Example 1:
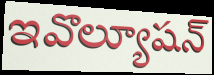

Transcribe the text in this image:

ఇవొల్యూషన్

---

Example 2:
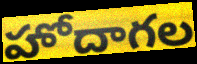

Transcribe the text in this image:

హోదాగల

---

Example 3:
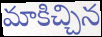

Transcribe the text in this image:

మాకిచ్చిన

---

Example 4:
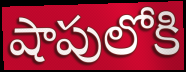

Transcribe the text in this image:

షాపులోకి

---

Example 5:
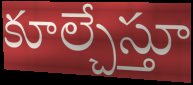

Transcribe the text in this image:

కూల్చేస్తూ